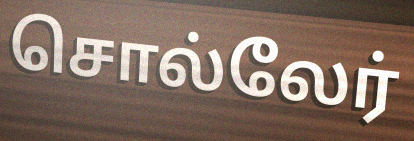
சொல்லேர்